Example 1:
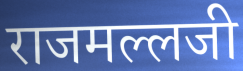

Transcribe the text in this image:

राजमल्लजी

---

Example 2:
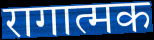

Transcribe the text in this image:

रागात्मक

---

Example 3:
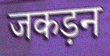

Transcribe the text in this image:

जकड़न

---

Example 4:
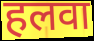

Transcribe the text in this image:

हलवा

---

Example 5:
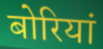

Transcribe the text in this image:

बोरियां